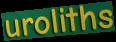
uroliths